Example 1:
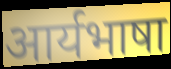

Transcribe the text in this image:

आर्यभाषा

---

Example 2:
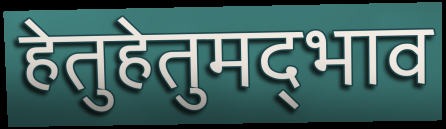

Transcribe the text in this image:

हेतुहेतुमद्भाव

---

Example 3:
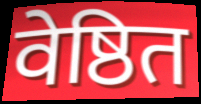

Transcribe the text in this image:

वेष्ठित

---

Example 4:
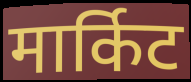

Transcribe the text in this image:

मार्किट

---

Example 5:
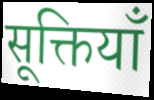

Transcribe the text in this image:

सूक्तियाँ